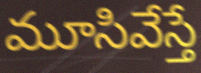
మూసివేస్తే